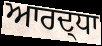
ਆਰਦ੍ਧਾ